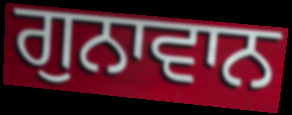
ਗੁਨਾਵਾਨ